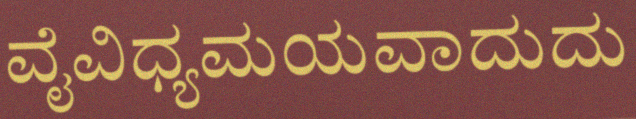
ವೈವಿಧ್ಯಮಯವಾದುದು